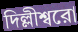
দিল্লীশ্বরো